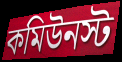
কমিউনস্ট